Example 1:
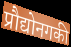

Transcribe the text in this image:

प्रौद्योनगकी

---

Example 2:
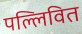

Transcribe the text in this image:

पल्लिवित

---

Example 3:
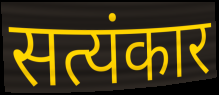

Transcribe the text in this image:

सत्यंकार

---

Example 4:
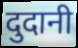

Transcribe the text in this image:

दुदानी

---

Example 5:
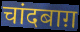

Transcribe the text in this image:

चांदबाग़